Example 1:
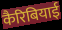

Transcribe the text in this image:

कैरिबियाई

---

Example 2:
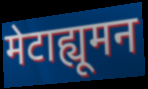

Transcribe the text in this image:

मेटाह्यूमन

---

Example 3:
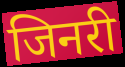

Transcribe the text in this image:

जिनरी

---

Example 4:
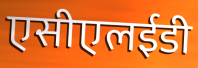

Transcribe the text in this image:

एसीएलईडी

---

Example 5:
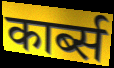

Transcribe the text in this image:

कार्ब्स